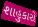
શાહુકારો